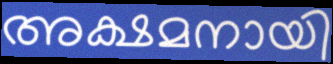
അക്ഷമനായി